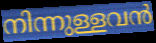
നിന്നുള്ളവൻ